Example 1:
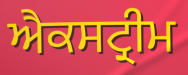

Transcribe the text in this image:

ਐਕਸਟ੍ਰੀਮ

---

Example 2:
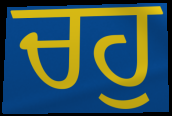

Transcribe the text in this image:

ਚਹੁ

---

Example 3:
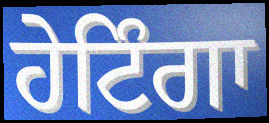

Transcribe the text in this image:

ਹੇਟਿੰਗਾ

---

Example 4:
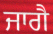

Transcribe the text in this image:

ਜਾਗੈ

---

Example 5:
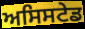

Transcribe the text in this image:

ਅਸਿਸਟੇਡ